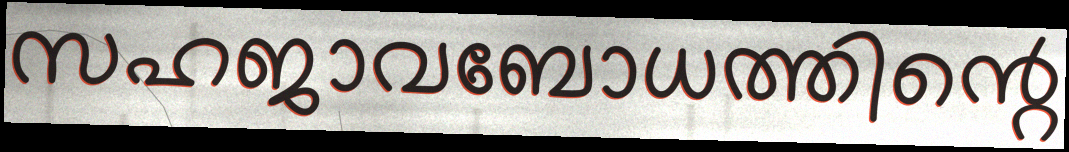
സഹജാവബോധത്തിന്റെ